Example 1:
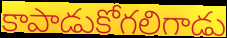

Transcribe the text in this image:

కాపాడుకోగలిగాడు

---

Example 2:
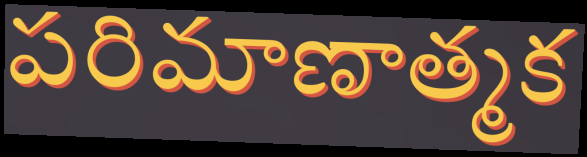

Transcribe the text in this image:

పరిమాణాత్మక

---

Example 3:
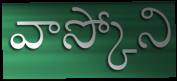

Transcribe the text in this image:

వాస్కోని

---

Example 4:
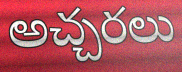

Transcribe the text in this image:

అచ్చరలు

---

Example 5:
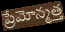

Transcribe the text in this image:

ప్రేమోన్మత్త